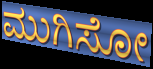
ಮುಗಿಸೋ